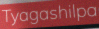
Tyagashilpa